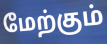
மேற்கும்